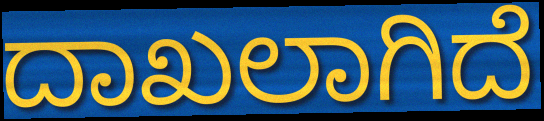
ದಾಖಲಾಗಿದೆ